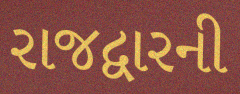
રાજદ્વારની